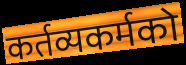
कर्तव्यकर्मको